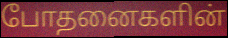
போதனைகளின்